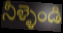
నీళ్ళెండి